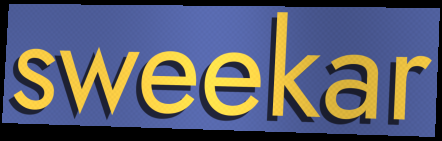
sweekar